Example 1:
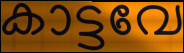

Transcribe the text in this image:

കാട്ടവേ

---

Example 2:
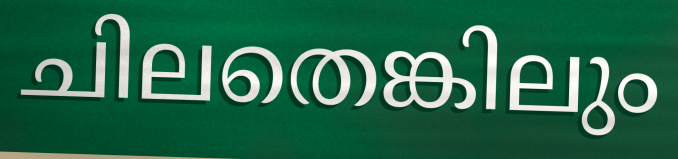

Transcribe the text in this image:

ചിലതെങ്കിലും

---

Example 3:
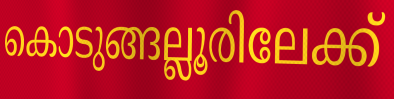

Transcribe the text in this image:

കൊടുങ്ങല്ലൂരിലേക്ക്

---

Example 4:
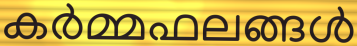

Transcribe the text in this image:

കർമ്മഫലങ്ങൾ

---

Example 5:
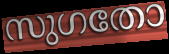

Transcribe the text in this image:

സുഗതോ